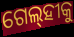
ଗେଲ୍‌ହୀକୁ